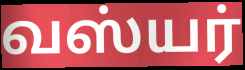
வஸ்யர்